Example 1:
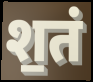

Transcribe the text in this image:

श॒तं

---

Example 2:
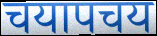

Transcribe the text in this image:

चयापचय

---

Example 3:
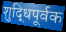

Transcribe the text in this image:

शुद्धिपूर्वक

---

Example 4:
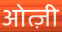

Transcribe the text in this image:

ओत्ज़ी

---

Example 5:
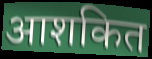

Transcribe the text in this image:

आशकित